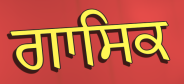
ਗਾਸਿਕ